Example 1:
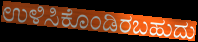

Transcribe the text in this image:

ಉಳಿಸಿಕೊಂಡಿರಬಹುದು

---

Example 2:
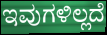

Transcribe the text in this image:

ಇವುಗಳಿಲ್ಲದೆ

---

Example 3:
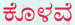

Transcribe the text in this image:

ಕೊಳವೆ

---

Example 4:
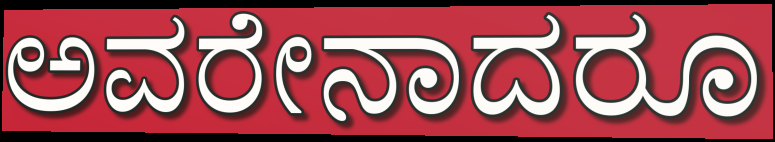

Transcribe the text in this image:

ಅವರೇನಾದರೂ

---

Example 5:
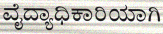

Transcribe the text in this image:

ವೈದ್ಯಾಧಿಕಾರಿಯಾಗಿ